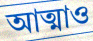
আত্মাও